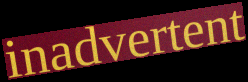
inadvertent